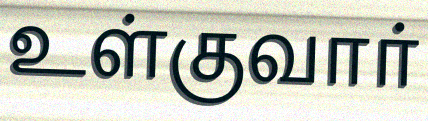
உள்குவார்